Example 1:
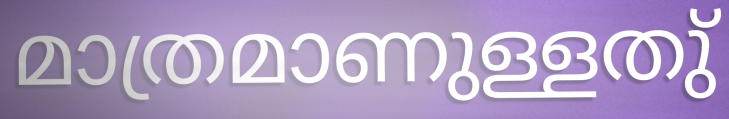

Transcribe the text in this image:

മാത്രമാണുള്ളതു്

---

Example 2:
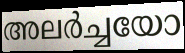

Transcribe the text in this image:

അലർച്ചയോ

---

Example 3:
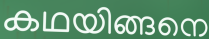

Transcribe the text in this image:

കഥയിങ്ങനെ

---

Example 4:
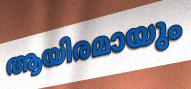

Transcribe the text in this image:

ആയിരമായും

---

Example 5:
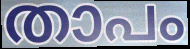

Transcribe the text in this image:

താപം